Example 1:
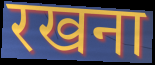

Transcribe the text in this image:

रखना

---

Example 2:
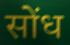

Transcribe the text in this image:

सोंध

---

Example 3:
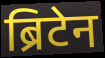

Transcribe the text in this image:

ब्रिटेन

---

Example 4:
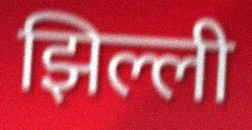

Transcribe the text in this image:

झिल्ली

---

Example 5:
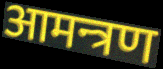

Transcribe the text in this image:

आमन्त्रण